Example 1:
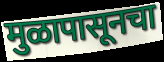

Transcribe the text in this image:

मुळापासूनचा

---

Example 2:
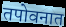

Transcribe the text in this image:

तपोवनात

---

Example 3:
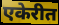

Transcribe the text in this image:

एकेरीत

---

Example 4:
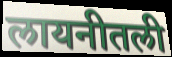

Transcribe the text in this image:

लायनीतली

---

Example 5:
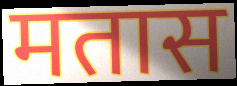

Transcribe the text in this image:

मतास